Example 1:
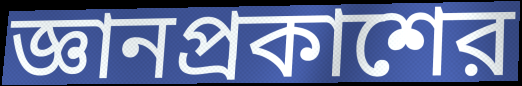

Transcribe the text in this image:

জ্ঞানপ্রকাশের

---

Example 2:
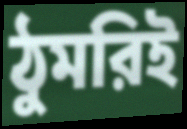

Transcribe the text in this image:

ঠুমরিই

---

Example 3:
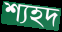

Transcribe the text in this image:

শ্যহদ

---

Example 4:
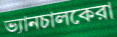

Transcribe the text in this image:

ভ্যানচালকেরা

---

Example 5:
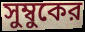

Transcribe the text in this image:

সুম্বুকের